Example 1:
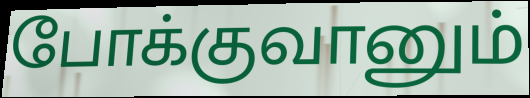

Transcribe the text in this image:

போக்குவானும்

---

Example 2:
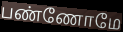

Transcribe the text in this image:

பண்ணோமே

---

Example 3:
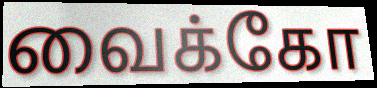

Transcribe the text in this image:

வைக்கோ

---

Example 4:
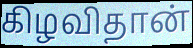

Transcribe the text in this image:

கிழவிதான்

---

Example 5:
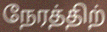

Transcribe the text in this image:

நேரத்திற்